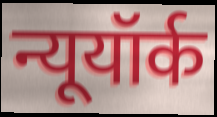
न्यूयॉर्क